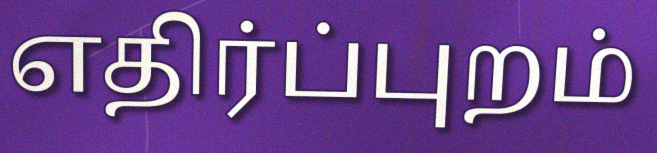
எதிர்ப்புறம்